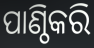
ପାଣ୍ଠିକରି